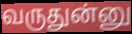
வருதுன்னு